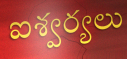
ఐశ్వర్యలు